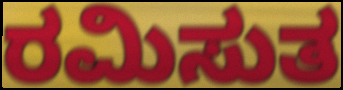
ರಮಿಸುತ